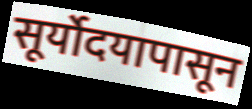
सूर्योदयापासून